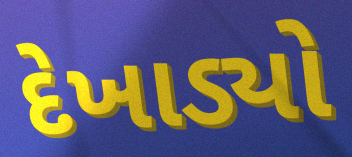
દેખાડ્યો